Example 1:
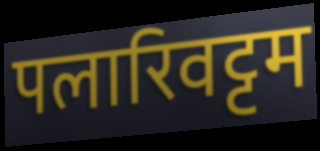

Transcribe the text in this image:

पलारिवट्टम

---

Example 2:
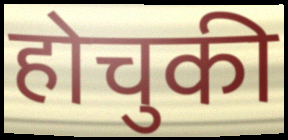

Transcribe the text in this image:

होचुकी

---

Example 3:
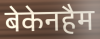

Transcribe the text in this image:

बेकेनहैम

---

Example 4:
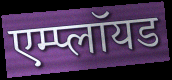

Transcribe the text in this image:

एम्प्लॉयड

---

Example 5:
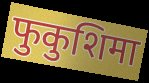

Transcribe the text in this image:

फुकुशिमा